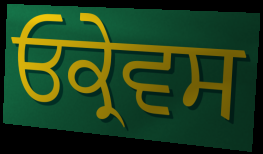
ਓਕ੍ਰੇਵਸ